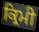
ਕ੍ਰਿਮੀ